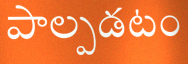
పాల్పడటం